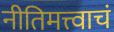
नीतिमत्त्वाचं